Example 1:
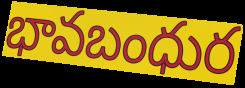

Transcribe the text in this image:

భావబంధుర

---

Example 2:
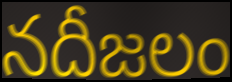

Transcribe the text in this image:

నదీజలం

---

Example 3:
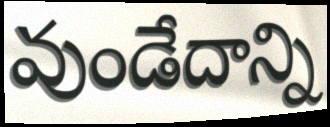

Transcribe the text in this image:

వుండేదాన్ని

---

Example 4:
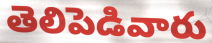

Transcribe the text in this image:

తెలిపెడివారు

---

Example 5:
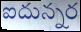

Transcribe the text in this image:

ఐదున్నర